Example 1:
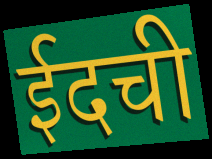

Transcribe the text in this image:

ईदची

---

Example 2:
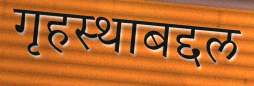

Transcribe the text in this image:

गृहस्थाबद्दल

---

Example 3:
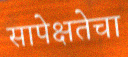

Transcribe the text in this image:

सापेक्षतेचा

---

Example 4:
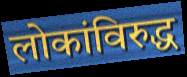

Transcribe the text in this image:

लोकांविरुद्ध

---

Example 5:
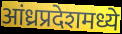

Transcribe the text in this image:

आंध्रप्रदेशमध्ये